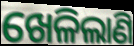
ଖେଳିଲାଣି